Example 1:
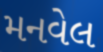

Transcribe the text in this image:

મનવેલ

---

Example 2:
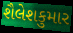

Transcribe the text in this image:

શૈલેશકુમાર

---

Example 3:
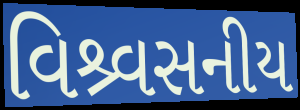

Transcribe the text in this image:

વિશ્ર્વસનીય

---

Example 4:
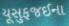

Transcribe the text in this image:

યૂસુફજઈના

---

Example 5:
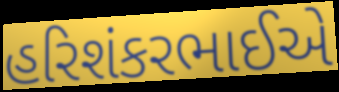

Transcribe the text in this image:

હરિશંકરભાઈએ